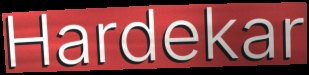
Hardekar